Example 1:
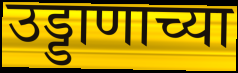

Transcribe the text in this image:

उड्डाणाच्या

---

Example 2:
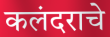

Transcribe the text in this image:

कलंदराचे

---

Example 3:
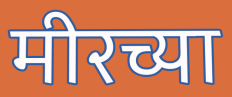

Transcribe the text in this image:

मीरच्या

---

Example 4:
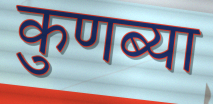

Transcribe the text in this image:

कुणब्या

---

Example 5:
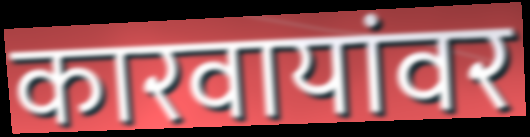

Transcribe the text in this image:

कारवायांवर